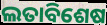
ଲତାବିଶେଷ